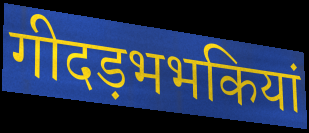
गीदड़भभकियां